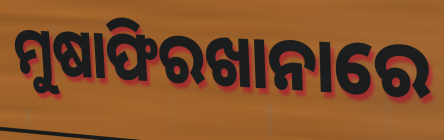
ମୁଷାଫିରଖାନାରେ